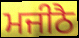
ਮਜੀਠੈ